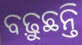
ବଢ଼ୁଛନ୍ତି